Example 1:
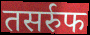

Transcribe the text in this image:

तसर्रुफ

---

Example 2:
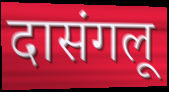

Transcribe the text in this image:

दासंगलू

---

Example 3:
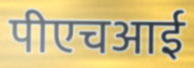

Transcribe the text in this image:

पीएचआई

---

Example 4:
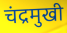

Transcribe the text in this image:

चंद्रमुखी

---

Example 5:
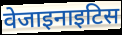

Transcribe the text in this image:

वेजाइनाइटिस